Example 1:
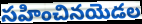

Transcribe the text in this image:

సహించినయెడల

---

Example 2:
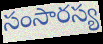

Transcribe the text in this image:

సంసారస్య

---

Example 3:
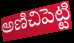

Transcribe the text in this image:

అణిచిపెట్టి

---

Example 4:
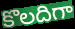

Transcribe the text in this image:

కొలదిగా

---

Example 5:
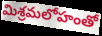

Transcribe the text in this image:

మిశ్రమలోహంతో